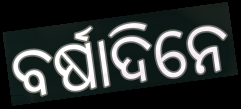
ବର୍ଷାଦିନେ